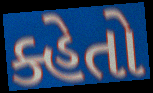
ક્હેતો